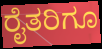
ರೈತರಿಗೂ